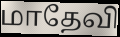
மாதேவி